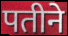
पतीने